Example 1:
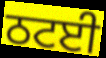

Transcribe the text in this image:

ਠਟਈ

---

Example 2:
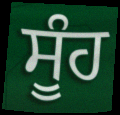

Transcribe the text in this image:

ਸੂੰਹ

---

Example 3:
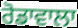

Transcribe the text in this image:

ਰੋਡਾਵਾਲਾ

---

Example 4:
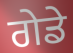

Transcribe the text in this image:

ਗੇਡੇ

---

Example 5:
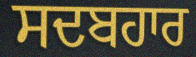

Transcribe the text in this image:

ਸਦਬਹਾਰ